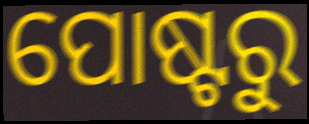
ପୋଷ୍ଟରୁ